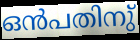
ഒൻപതിനു്